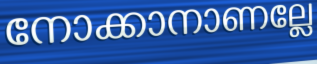
നോക്കാനാണല്ലേ